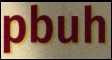
pbuh